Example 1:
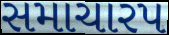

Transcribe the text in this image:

સમાચારપ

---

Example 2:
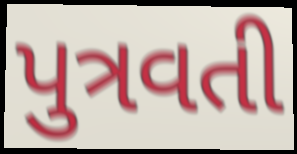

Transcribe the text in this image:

પુત્રવતી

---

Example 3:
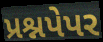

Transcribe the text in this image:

પ્રશ્નપેપર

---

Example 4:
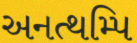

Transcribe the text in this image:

અનત્થમ્પિ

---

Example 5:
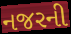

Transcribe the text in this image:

નજરની